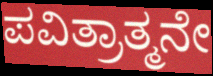
ಪವಿತ್ರಾತ್ಮನೇ